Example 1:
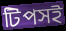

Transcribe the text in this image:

টিপসই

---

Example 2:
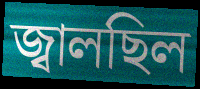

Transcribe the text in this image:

জ্বালছিল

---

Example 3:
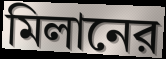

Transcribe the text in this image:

মিলানের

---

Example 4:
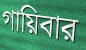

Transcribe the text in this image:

গায়িবার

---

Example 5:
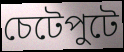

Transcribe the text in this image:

চেটেপুটে